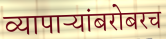
व्यापाऱ्यांबरोबरच